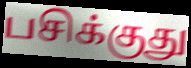
பசிக்குது